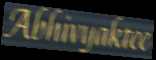
Abhivyaktee